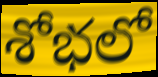
శోభలో